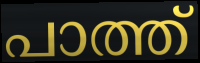
പാത്ത്